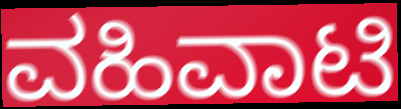
ವಹಿವಾಟಿ